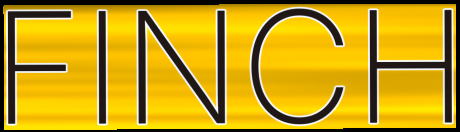
FINCH